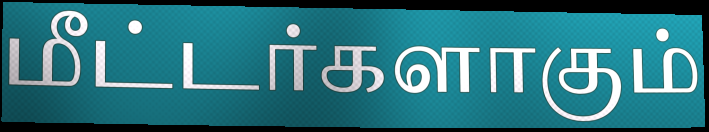
மீட்டர்களாகும்